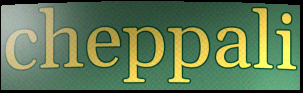
cheppali